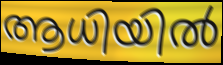
ആധിയിൽ